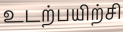
உடற்பயிற்சி